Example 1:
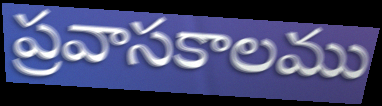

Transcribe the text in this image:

ప్రవాసకాలము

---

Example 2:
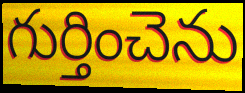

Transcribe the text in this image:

గుర్తించెను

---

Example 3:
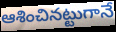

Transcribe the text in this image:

ఆశించినట్టుగానే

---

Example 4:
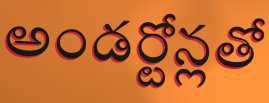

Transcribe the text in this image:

అండర్టోన్లతో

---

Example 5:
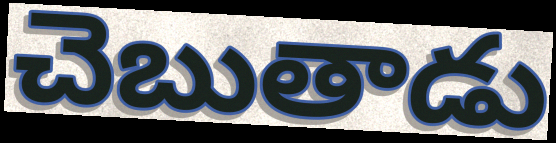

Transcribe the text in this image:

చెబుతాడు